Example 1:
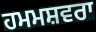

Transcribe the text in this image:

ਹਮਮਸ਼ਵਰਾ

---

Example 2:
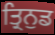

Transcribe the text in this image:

ਤ੍ਰਿਨੁਡ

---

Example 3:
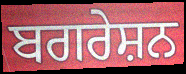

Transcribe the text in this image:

ਬਗਰੇਸ਼ਨ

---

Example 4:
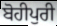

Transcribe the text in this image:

ਬੋਹੀਪੁਰੀ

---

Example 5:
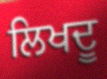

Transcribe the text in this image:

ਲਿਖਦੂ